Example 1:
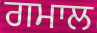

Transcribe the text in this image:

ਗਮਾਲ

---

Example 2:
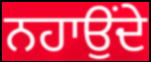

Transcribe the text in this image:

ਨਹਾਉਂਦੇ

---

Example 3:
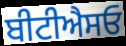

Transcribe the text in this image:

ਬੀਟੀਐਸਓ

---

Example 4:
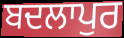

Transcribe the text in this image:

ਬਦਲਾਪੁਰ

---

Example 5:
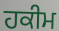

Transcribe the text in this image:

ਹਕੀਮ